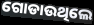
ଗୋଡାଉଥିଲେ